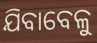
ଯିବାବେଳୁ